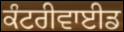
ਕੰਟਰੀਵਾਈਡ